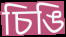
চিঙি